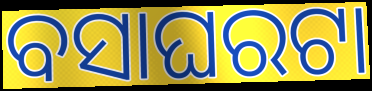
ବସାଘରଟା